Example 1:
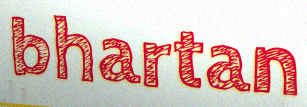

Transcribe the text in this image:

bhartan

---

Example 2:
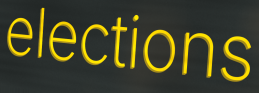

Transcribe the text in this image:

elections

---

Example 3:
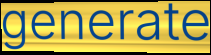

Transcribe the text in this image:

generate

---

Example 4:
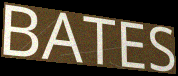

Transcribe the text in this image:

BATES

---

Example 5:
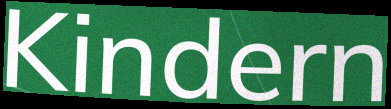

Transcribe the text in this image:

Kindern